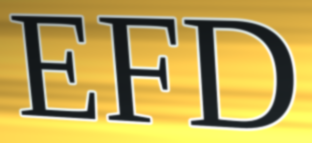
EFD